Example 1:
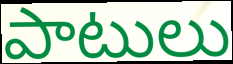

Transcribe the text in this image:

పాటులు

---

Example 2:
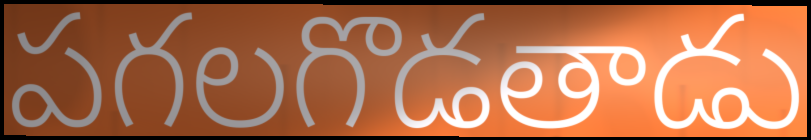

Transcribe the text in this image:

పగలగొడతాడు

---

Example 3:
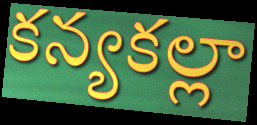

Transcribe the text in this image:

కన్యకల్లా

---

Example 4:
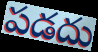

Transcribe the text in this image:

పడదు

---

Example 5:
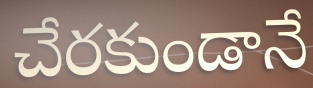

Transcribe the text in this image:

చేరకుండానే